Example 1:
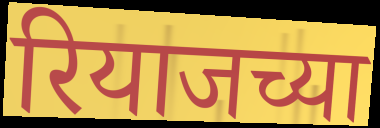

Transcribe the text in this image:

रियाजच्या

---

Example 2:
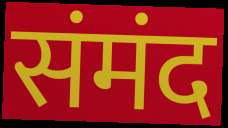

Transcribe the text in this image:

संमंद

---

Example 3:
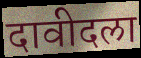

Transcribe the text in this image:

दावीदला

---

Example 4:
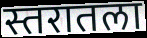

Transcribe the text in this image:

स्तरातला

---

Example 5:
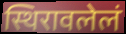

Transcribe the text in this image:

स्थिरावलेलं